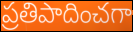
ప్రతిపాదించగా